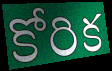
కోరిక